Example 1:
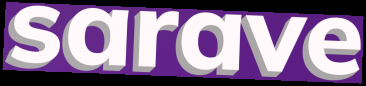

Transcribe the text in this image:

sarave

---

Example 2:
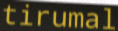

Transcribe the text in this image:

tirumal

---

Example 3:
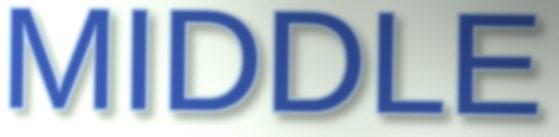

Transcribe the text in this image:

MIDDLE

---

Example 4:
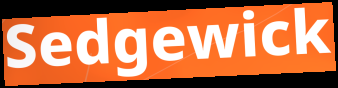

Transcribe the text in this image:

Sedgewick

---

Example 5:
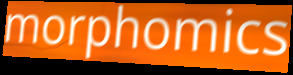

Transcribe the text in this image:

morphomics